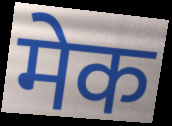
मेक